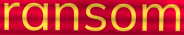
ransom